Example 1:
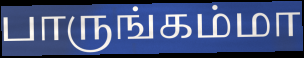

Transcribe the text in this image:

பாருங்கம்மா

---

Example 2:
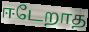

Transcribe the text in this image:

ஈடேறாத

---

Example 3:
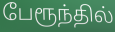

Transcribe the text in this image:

பேரூந்தில்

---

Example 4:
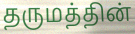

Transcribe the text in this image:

தருமத்தின்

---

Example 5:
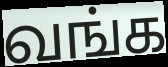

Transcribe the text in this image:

வங்க